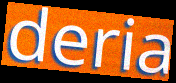
deria